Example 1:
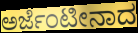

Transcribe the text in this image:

ಅರ್ಜೆಂಟೀನಾದ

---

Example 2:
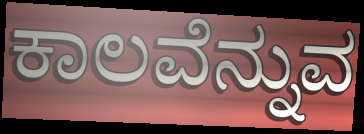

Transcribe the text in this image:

ಕಾಲವೆನ್ನುವ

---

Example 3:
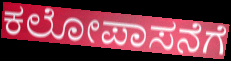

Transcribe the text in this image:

ಕಲೋಪಾಸನೆಗೆ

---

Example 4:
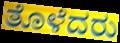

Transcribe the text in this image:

ತೊಳೆದರು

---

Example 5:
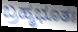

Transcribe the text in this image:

ಬ್ರಹ್ಮಭೂತಃ